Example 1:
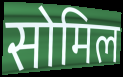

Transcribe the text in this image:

सोमिल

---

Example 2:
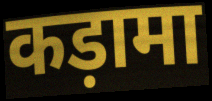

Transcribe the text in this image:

कड़ामा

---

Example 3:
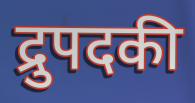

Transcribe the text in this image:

द्रुपदकी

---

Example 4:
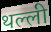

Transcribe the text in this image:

थल्ली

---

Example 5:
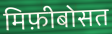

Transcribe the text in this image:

मिफ़ीबोसत